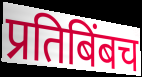
प्रतिबिंबच